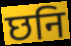
छनि